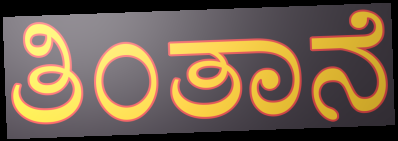
ತಿಂತಾನೆ